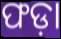
ଫଡ଼ା